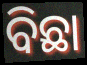
ବିଛା